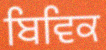
ਬਿਵਿਕ